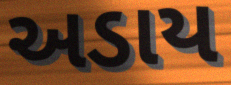
અડાય